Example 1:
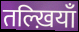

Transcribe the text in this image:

तल्ख़ियाँ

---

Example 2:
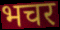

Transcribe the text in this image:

भचर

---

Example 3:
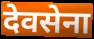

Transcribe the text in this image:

देवसेना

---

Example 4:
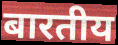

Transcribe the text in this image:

बारतीय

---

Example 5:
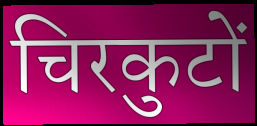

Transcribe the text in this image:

चिरकुटों